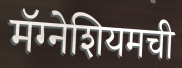
मॅग्नेशियमची